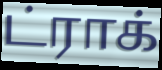
ட்ராக்